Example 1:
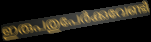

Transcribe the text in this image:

ഇരുപതുപേർക്കുവേണ്ടി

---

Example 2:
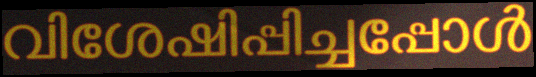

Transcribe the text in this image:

വിശേഷിപ്പിച്ചപ്പോൾ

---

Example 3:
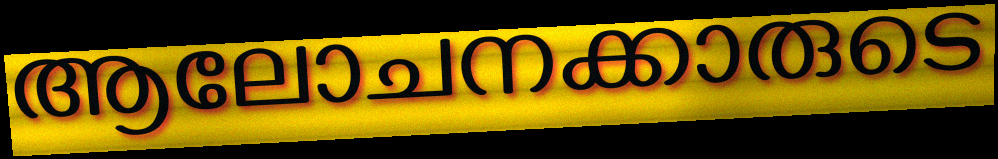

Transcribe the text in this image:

ആലോചനക്കാരുടെ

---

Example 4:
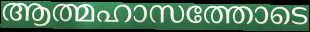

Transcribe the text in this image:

ആത്മഹാസത്തോടെ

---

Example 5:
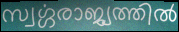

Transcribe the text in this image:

സ്വൎഗ്ഗരാജ്യത്തിൽ